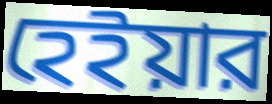
হেইয়ার